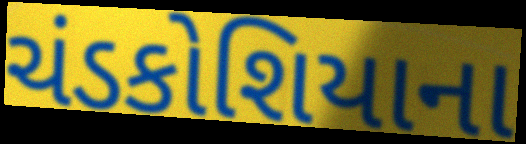
ચંડકોશિયાના